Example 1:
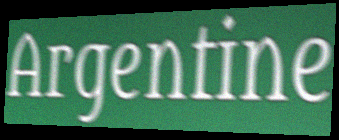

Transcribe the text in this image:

Argentine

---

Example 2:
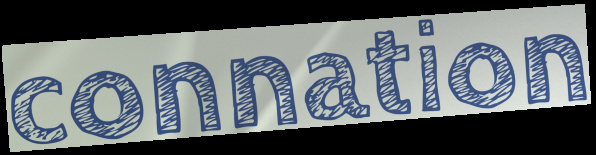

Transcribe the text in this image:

connation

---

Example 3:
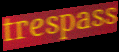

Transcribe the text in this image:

trespass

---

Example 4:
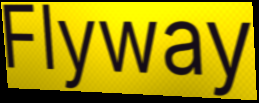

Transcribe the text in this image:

Flyway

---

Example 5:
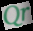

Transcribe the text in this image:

Qr